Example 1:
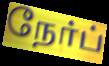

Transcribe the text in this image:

நேர்ப்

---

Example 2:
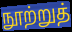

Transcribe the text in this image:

நூற்றுத்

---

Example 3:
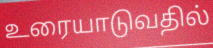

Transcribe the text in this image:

உரையாடுவதில்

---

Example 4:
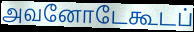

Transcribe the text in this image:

அவனோடேகூடப்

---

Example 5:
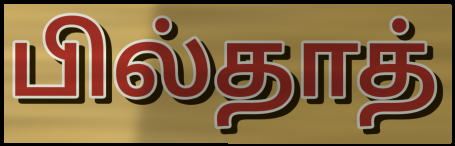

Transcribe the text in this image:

பில்தாத்